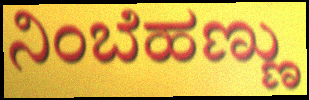
ನಿಂಬೆಹಣ್ಣು